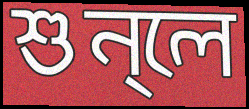
শুন্‌লে